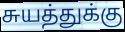
சுயத்துக்கு